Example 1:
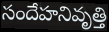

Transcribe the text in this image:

సందేహనివృత్తి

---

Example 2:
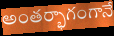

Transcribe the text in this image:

అంతర్భాగంగానే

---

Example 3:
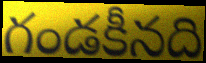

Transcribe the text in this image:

గండకీనది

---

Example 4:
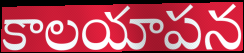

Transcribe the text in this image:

కాలయాపన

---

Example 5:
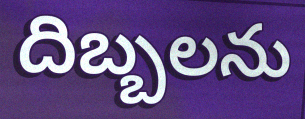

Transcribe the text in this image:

దిబ్బలను